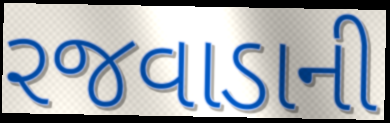
રજવાડાની